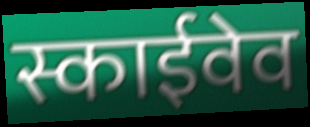
स्काईवेव